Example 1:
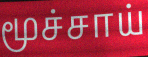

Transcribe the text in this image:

மூச்சாய்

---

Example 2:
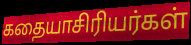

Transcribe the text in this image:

கதையாசிரியர்கள்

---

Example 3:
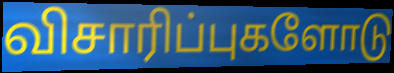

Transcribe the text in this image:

விசாரிப்புகளோடு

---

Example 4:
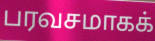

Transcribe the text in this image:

பரவசமாகக்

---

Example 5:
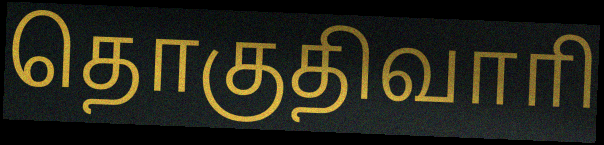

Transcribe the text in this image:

தொகுதிவாரி